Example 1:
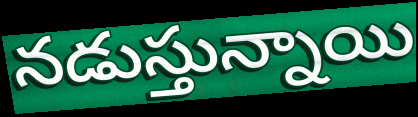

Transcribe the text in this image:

నడుస్తున్నాయి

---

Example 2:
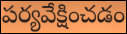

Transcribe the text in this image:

పర్యవేక్షించడం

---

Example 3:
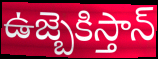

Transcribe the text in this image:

ఉజ్బెకిస్తాన్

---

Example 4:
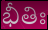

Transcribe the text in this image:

భీతిః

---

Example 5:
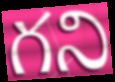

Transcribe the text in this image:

గని